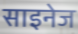
साइनेज